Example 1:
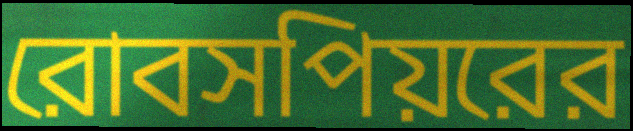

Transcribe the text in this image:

রোবসপিয়রের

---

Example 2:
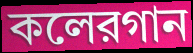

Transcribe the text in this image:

কলেরগান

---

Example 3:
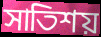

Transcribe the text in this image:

সাতিশয়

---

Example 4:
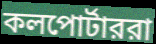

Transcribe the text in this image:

কলপোর্টাররা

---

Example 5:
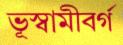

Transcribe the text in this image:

ভূস্বামীবর্গ